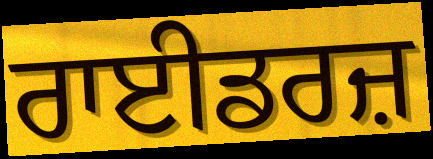
ਰਾਈਡਰਜ਼